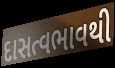
દાસત્વભાવથી